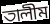
তালীম